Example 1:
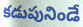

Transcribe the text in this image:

కడుపునిండే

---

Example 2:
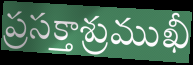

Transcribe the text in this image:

ప్రసక్తాశ్రుముఖీ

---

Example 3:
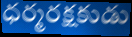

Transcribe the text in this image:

ధర్మరక్షకుడు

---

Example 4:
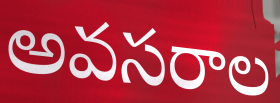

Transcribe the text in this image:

అవసరాల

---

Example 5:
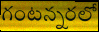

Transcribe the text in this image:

గంటన్నరలో